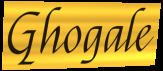
Ghogale